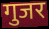
गुजर